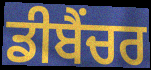
ਡੀਬੈਂਚਰ